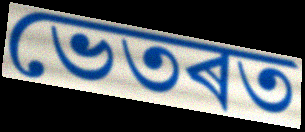
ভেতৰত